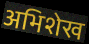
अभिशेख